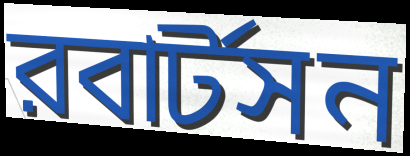
রবার্টসন